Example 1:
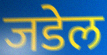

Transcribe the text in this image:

जडेल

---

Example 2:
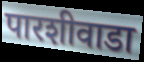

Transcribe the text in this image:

पारशीवाडा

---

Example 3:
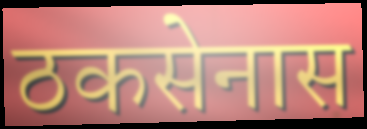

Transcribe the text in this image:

ठकसेनास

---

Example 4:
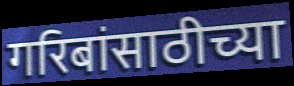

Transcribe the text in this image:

गरिबांसाठीच्या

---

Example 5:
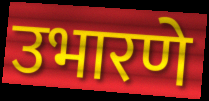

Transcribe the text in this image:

उभारणे